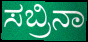
ಸಬ್ರಿನಾ